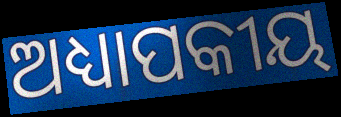
ଅଧ୍ୟାପକୀୟ